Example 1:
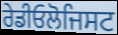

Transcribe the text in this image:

ਰੇਡੀਓਲੋਜਿਸਟ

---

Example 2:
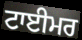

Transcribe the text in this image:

ਟਾਈਮਰ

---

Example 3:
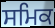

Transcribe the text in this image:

ਸਮਿਕ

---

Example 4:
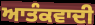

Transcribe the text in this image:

ਆਤੰਕਵਾਦੀ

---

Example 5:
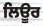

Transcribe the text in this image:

ਲਿਊਰ